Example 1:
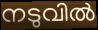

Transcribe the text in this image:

നടുവിൽ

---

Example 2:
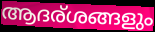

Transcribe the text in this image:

ആദര്ശങ്ങളും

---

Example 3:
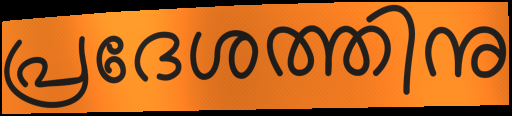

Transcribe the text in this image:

പ്രദേശത്തിനു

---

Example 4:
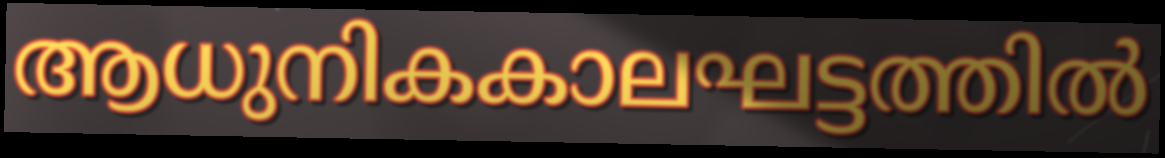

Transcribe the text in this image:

ആധുനികകാലഘട്ടത്തിൽ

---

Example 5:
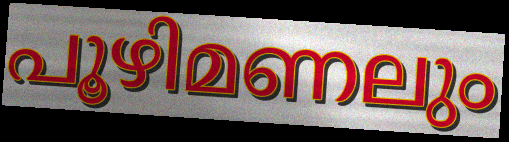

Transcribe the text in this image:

പൂഴിമണലും